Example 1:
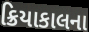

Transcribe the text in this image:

ક્રિયાકાલના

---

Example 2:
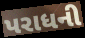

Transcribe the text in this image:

પરાધની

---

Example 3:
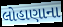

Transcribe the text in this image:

લોહાણાના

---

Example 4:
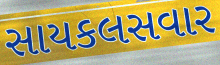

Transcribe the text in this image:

સાયકલસવાર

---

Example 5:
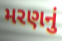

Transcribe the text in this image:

મરણનું